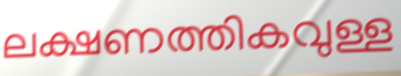
ലക്ഷണത്തികവുള്ള